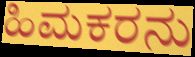
ಹಿಮಕರನು